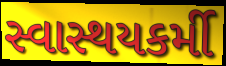
સ્વાસ્થયકર્મી